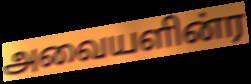
அவையளின்ர